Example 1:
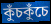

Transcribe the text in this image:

কুঁচকুঁচে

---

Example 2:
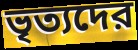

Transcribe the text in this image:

ভৃত্যদের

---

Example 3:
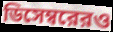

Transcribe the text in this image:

ডিসেম্বরেরও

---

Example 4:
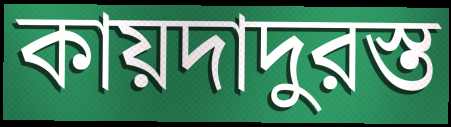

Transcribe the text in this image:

কায়দাদুরস্ত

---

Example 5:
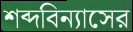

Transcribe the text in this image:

শব্দবিন্যাসের